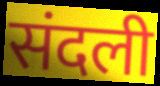
संदली